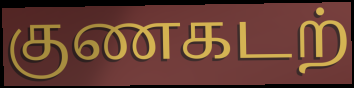
குணகடற்